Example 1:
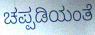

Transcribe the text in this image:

ಚಪ್ಪಡಿಯಂತೆ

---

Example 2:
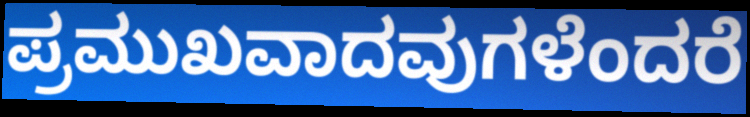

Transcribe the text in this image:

ಪ್ರಮುಖವಾದವುಗಳೆಂದರೆ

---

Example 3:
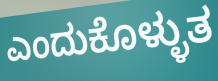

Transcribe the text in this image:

ಎಂದುಕೊಳ್ಳುತ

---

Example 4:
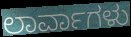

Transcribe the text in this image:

ಲಾರ್ವಾಗಳು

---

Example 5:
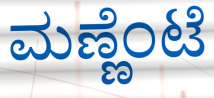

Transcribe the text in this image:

ಮಣ್ಣೆಂಟೆ